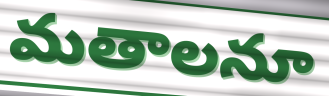
మతాలనూ